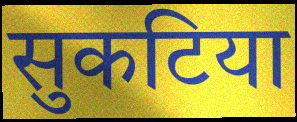
सुकटिया